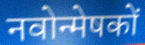
नवोन्मेषकों